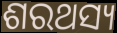
ଶରଥସ୍ୟ